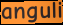
anguli